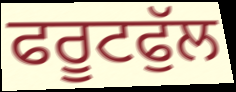
ਫਰੂਟਫੁੱਲ